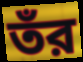
তঁর